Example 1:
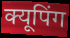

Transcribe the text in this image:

क्यूपिंग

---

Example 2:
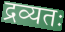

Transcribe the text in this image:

द्रव्यतः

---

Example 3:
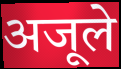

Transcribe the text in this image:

अजूले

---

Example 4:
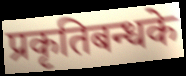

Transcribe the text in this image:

प्रकृतिबन्धके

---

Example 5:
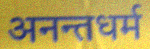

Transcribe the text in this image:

अनन्तधर्म